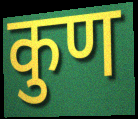
कुण